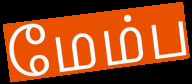
மேம்ப